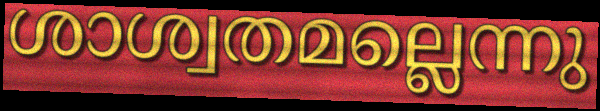
ശാശ്വതമല്ലെന്നു